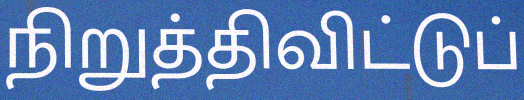
நிறுத்திவிட்டுப்